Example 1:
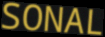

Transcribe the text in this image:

SONAL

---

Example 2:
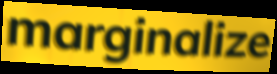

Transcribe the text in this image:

marginalize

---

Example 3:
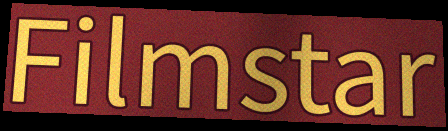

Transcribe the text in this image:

Filmstar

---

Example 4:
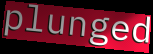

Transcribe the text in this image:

plunged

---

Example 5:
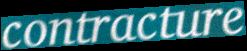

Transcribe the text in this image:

contracture